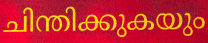
ചിന്തിക്കുകയും